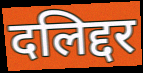
दलिद्दर